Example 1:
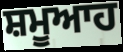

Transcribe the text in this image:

ਸ਼ਮੂਆਹ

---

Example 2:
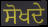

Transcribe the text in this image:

ਸੋਖਦੇ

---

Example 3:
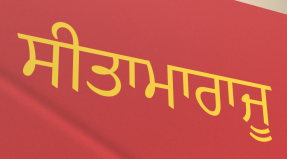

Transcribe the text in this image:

ਸੀਤਾਮਾਰਾਜੂ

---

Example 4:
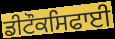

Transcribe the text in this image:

ਡੀਟੌਕਸਿਫਾਈ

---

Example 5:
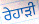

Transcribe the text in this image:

ਰੇਹਾੜੀ